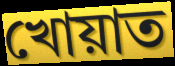
খোয়াত